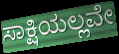
ಸಾಕ್ಷಿಯಲ್ಲವೇ